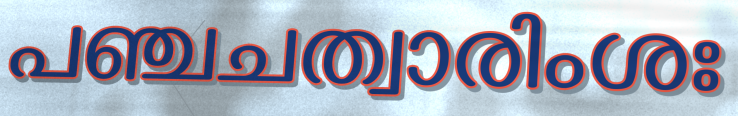
പഞ്ചചത്വാരിംശഃ